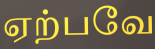
ஏற்பவே